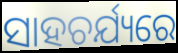
ସାହଚର୍ଯ୍ୟରେ